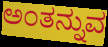
ಅಂತನ್ನುವ